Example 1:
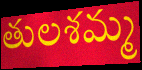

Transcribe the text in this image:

తులశమ్మ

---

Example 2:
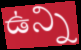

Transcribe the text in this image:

ఉన్ని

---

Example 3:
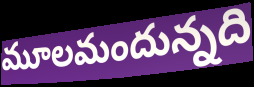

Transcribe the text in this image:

మూలమందున్నది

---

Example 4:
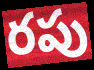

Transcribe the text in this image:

రపు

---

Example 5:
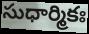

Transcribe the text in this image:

సుధార్మికః